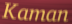
Kaman